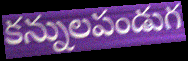
కన్నులపండుగ